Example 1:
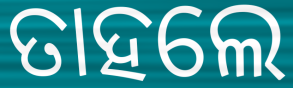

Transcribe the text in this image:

ତାହଲେ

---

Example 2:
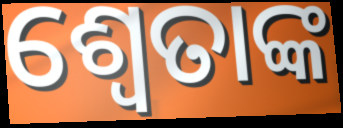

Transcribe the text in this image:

ଶ୍ୱେତାଙ୍କ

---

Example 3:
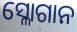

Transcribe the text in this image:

ସ୍ଳୋଗାନ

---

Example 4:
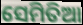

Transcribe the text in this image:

ସେମିତିଆ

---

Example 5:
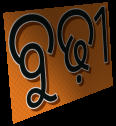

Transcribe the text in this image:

ବୁଢ଼ୀ